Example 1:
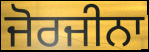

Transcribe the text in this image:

ਜੋਰਜੀਨਾ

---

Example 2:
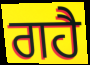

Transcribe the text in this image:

ਗਹੈ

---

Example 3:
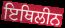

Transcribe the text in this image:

ਇਥਿਲੀਨ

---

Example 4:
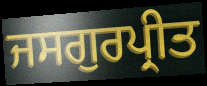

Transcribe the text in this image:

ਜਸਗੁਰਪ੍ਰੀਤ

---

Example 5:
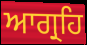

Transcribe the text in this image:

ਆਗ੍ਰਹਿ